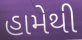
હામેથી